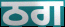
ਠਗ